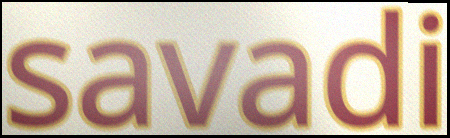
savadi